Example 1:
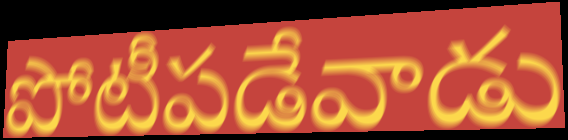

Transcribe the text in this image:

పోటీపడేవాడు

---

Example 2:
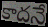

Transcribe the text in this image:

కాదనే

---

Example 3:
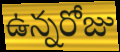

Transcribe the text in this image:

ఉన్నరోజు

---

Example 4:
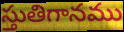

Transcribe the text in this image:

స్తుతిగానము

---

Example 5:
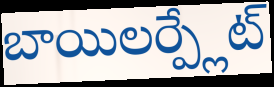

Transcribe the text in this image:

బాయిలర్ప్లేట్